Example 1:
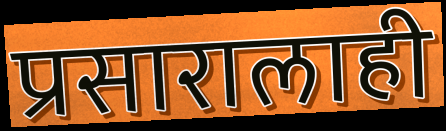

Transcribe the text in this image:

प्रसारालाही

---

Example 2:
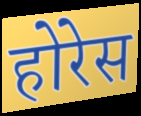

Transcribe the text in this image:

होरेस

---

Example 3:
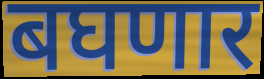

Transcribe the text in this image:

बघणार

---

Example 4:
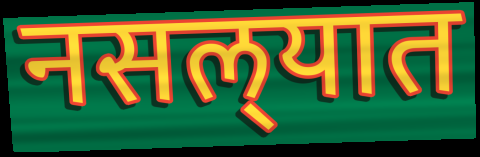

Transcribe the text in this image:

नसल्यात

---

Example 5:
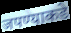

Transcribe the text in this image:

जपण्याकडे